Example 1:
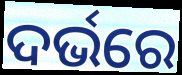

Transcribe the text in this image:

ଦର୍ଭରେ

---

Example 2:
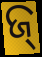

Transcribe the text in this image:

ଜ୍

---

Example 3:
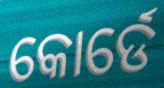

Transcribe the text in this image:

କୋର୍ଡେ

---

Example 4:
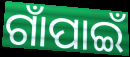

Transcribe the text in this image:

ଗାଁପାଇଁ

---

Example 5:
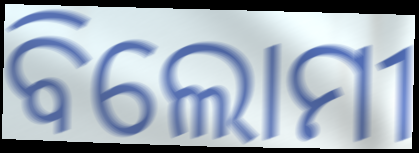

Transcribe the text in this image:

ବିଲୋମୀ